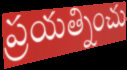
ప్రయత్నించు